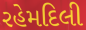
રહેમદિલી